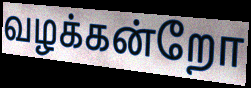
வழக்கன்றோ